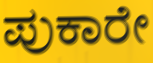
ಪುಕಾರೇ